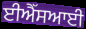
ਈਐੱਸਆਈ